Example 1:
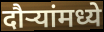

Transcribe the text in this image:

दौऱ्यांमध्ये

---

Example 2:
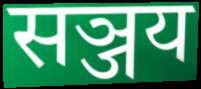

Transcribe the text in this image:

सञ्जय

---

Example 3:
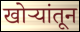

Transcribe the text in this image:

खोऱ्यांतून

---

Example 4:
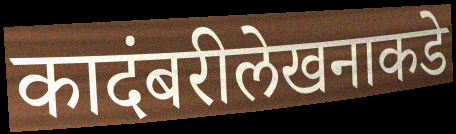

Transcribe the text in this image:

कादंबरीलेखनाकडे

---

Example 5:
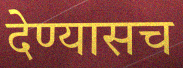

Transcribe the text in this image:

देण्यासच